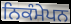
ਨਿਕੰਮੇਪਨ